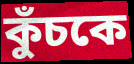
কুঁচকে